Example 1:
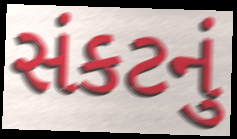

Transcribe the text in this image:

સંકટનું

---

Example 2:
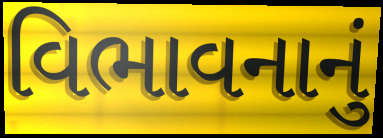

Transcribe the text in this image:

વિભાવનાનું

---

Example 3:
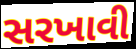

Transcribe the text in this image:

સરખાવી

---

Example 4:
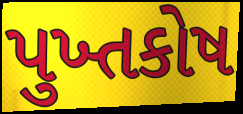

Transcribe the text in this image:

પુખ્તકોષ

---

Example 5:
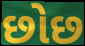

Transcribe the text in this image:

છોછ